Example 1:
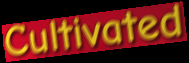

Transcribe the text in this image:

Cultivated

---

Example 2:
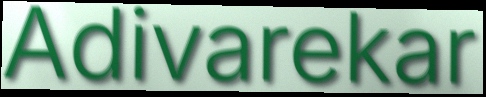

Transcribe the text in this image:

Adivarekar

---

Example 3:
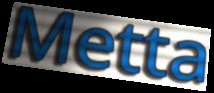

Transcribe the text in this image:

Metta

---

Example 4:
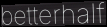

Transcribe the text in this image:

betterhalf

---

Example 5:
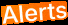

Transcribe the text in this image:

Alerts